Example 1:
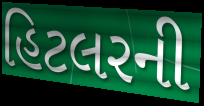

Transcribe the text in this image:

હિટલરની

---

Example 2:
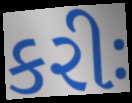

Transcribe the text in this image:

કરીઃ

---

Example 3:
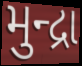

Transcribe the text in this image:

મુન્દ્રા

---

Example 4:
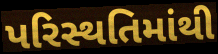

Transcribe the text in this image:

પરિસ્થતિમાંથી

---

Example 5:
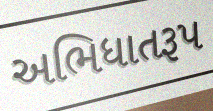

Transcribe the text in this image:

અભિધાતરૂપ